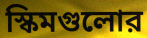
স্কিমগুলোর